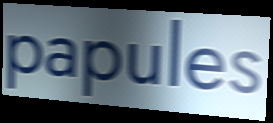
papules